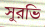
সুরভি